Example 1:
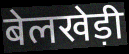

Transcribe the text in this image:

बेलखेड़ी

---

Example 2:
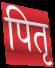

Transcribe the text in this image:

पितृ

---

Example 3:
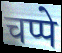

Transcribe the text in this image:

चप्पे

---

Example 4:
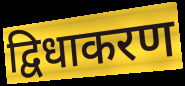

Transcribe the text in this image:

द्विधाकरण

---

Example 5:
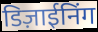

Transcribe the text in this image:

डिज़ाईनिंग